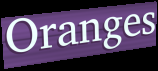
Oranges